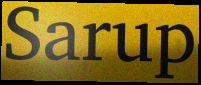
Sarup